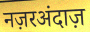
नज़रअंदाज़